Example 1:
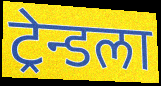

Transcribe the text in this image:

ट्रेन्डला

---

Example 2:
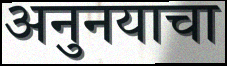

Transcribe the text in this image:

अनुनयाचा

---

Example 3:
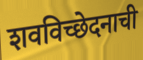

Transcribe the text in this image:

शवविच्छेदनाची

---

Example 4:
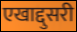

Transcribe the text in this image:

एखाद्दुसरी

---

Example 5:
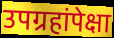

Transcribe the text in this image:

उपग्रहांपेक्षा